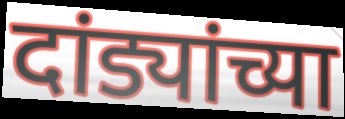
दांड्यांच्या